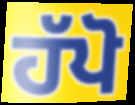
ਹੱਪੋ